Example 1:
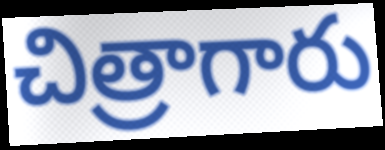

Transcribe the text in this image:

చిత్రాగారు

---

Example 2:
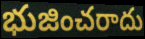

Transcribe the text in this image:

భుజించరాదు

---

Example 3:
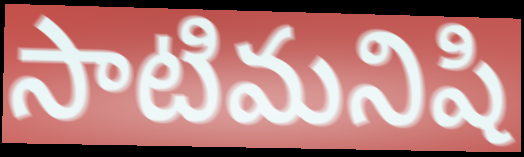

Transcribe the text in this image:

సాటిమనిషి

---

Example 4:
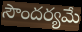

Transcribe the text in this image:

సౌందర్యమే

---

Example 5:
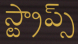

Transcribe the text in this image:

స్ట్రాప్స్